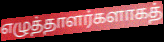
எழுத்தாளர்களாகத்